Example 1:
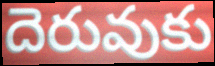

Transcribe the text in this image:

దెరువుకు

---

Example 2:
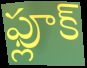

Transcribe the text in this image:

ఫ్లూక్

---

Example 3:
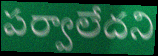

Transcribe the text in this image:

పర్వాలేదని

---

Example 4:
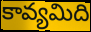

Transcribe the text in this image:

కావ్యమిది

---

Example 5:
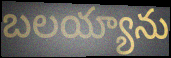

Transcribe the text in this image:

బలయ్యాను